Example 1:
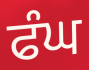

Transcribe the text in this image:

ਫੰਘ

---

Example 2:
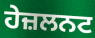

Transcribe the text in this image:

ਹੇਜ਼ਲਨਟ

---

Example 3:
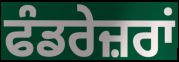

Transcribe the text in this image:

ਫੰਡਰੇਜ਼ਰਾਂ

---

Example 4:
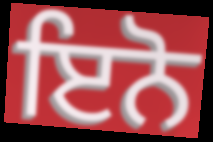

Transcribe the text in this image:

ਇਨੋ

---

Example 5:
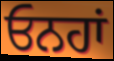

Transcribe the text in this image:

ਓਨਹਾਂ